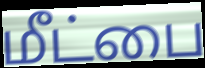
மீட்பை